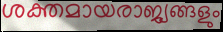
ശക്തമായരാജ്യങ്ങളും